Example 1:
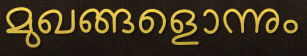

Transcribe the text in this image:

മുഖങ്ങളൊന്നും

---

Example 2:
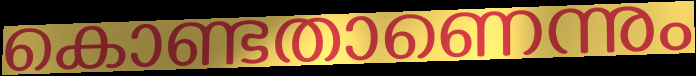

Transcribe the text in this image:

കൊണ്ടതാണെന്നും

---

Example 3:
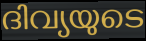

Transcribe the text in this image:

ദിവ്യയുടെ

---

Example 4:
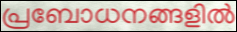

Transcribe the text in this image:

പ്രബോധനങ്ങളിൽ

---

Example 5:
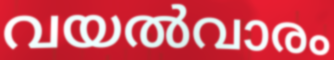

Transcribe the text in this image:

വയൽവാരം